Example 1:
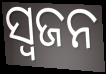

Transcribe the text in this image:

ସ୍ୱଜନ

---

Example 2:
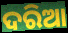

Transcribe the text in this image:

ଦରିଆ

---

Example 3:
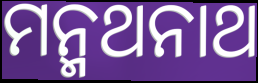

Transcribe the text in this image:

ମନ୍ମଥନାଥ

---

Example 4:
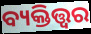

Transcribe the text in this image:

ବ୍ୟକ୍ତିତ୍ତ୍ଵର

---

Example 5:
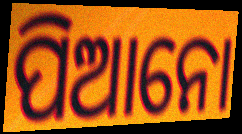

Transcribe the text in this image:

ପିଆନୋ